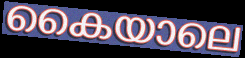
കൈയാലെ